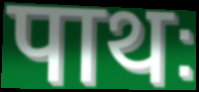
पाथः